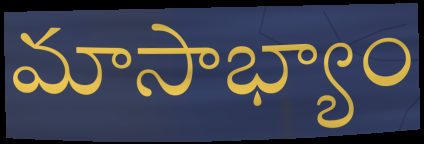
మాసాభ్యాం